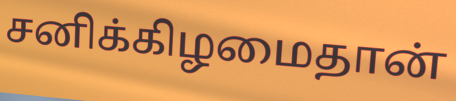
சனிக்கிழமைதான்